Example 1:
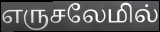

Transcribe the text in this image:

எருசலேமில்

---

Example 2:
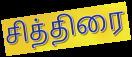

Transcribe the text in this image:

சித்திரை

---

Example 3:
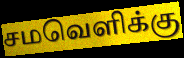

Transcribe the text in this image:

சமவெளிக்கு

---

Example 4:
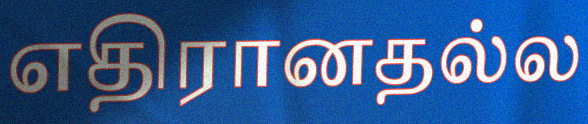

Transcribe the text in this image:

எதிரானதல்ல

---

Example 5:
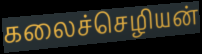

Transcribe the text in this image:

கலைச்செழியன்